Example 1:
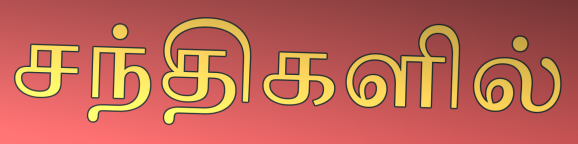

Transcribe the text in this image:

சந்திகளில்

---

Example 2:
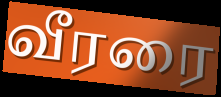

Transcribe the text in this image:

வீரரை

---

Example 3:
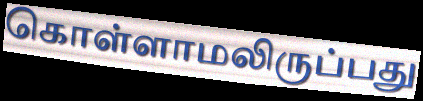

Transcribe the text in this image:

கொள்ளாமலிருப்பது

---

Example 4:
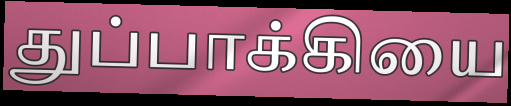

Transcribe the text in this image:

துப்பாக்கியை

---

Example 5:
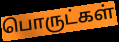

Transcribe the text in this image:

பொருட்கள்